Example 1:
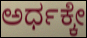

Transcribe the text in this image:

ಅರ್ಧಕ್ಕೇ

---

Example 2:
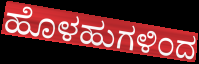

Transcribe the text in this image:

ಹೊಳಹುಗಳಿಂದ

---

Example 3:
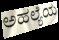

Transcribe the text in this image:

ಅಹಲ್ಯೆಯ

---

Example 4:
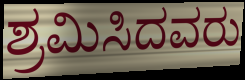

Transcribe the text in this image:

ಶ್ರಮಿಸಿದವರು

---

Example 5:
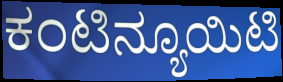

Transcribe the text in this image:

ಕಂಟಿನ್ಯೂಯಿಟಿ